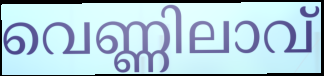
വെണ്ണിലാവ്